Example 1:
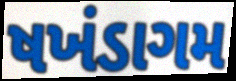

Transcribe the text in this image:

ષખંડાગમ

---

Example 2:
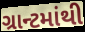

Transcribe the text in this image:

ગ્રાન્ટમાંથી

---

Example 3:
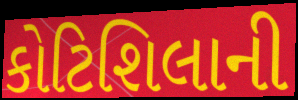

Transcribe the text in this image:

કોટિશિલાની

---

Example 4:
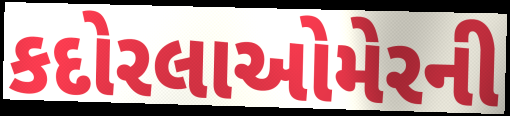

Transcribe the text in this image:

કદોરલાઓમેરની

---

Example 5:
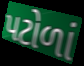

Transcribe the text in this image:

પટોળાં